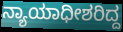
ನ್ಯಾಯಾಧೀಶರಿದ್ದ